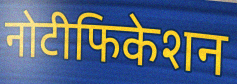
नोटीफिकेशन